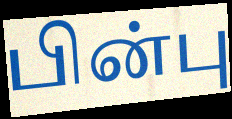
பின்பு